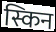
स्किन